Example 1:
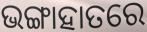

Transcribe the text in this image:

ଭଙ୍ଗାହାତରେ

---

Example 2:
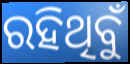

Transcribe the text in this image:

ରହିଥିବୁଁ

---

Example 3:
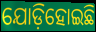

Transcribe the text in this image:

ଯୋଡ଼ିହୋଇଛି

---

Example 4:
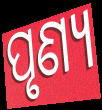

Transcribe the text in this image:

ପୃଣ୍ୟ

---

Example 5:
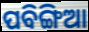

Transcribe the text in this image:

ପବିଙ୍ଗିଆ